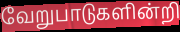
வேறுபாடுகளின்றி